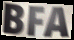
BFA